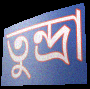
তুন্দ্রা